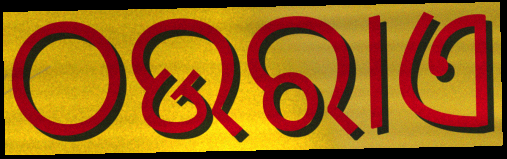
ଠଉରାଏ